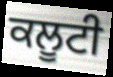
ਕਲੂਟੀ